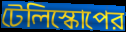
টেলিস্কোপের